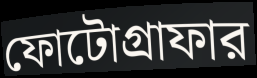
ফোটোগ্রাফার